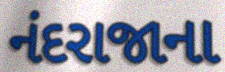
નંદરાજાના